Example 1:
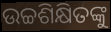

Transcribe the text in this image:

ଉଚ୍ଚଶିକ୍ଷିତଙ୍କୁ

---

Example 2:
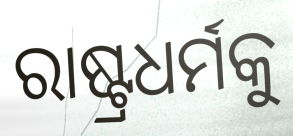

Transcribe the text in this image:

ରାଷ୍ଟ୍ରଧର୍ମକୁ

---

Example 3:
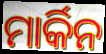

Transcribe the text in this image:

ମାର୍କିନ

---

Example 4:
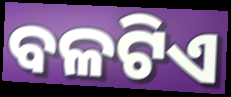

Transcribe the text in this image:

ବଳଟିଏ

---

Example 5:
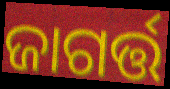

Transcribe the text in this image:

ଜାଗର୍ତ୍ତ